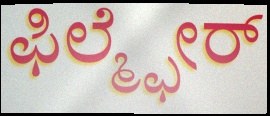
ಫಿಲ್ಮ್ಫೇರ್